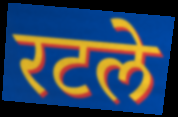
रटले